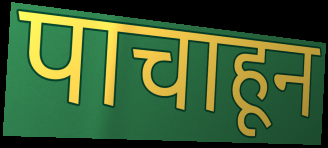
पाचाहून